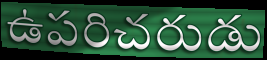
ఉపరిచరుడు